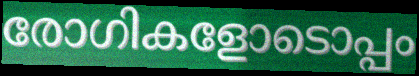
രോഗികളോടൊപ്പം